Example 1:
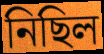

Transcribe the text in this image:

নিছিল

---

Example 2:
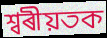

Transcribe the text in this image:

শ্বৰীয়তক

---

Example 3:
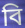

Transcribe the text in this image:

বি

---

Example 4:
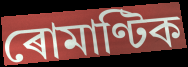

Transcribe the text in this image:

ৰোমাণ্টিক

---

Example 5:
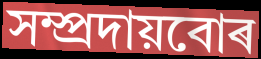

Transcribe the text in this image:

সম্প্ৰদায়বোৰ